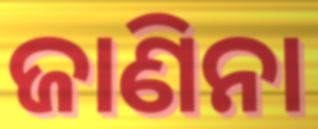
ଜାଣିନା